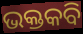
ଭକ୍ତକବି